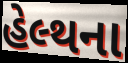
હેલ્થના